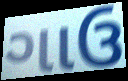
ગાઉ